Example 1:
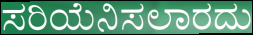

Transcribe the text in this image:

ಸರಿಯೆನಿಸಲಾರದು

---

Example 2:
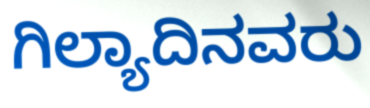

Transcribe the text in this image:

ಗಿಲ್ಯಾದಿನವರು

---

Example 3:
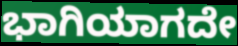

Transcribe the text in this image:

ಭಾಗಿಯಾಗದೇ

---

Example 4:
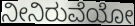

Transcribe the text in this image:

ನೀನಿರುವೆಯೋ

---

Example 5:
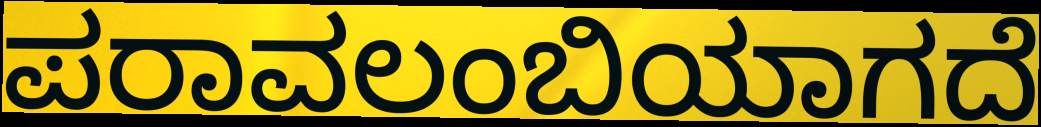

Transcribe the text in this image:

ಪರಾವಲಂಬಿಯಾಗದೆ